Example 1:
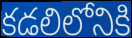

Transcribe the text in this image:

కడలిలోనికి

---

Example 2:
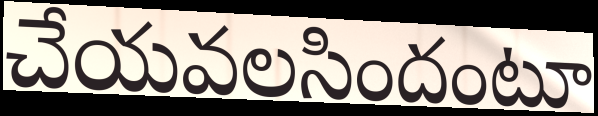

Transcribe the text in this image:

చేయవలసిందంటూ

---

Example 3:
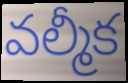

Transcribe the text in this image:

వల్మీక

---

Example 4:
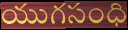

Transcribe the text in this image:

యుగసంధి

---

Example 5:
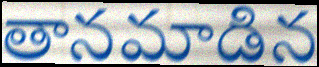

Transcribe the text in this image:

తానమాడిన